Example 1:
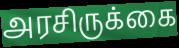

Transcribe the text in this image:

அரசிருக்கை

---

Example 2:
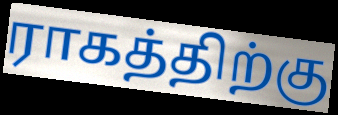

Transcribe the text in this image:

ராகத்திற்கு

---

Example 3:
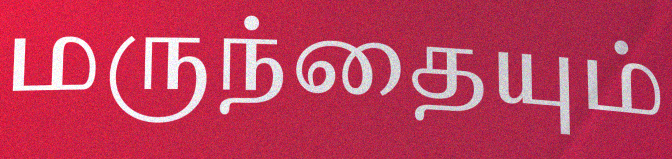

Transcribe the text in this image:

மருந்தையும்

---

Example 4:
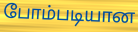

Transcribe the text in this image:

போம்படியான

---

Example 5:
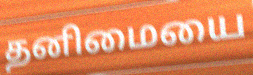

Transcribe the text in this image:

தனிமையை